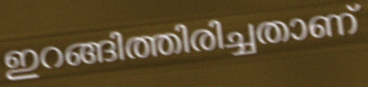
ഇറങ്ങിത്തിരിച്ചതാണ്